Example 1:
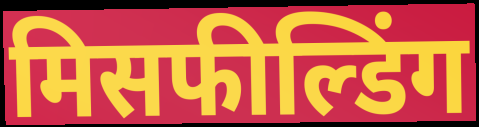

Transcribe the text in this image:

मिसफील्डिंग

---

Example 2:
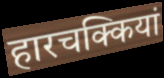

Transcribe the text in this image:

हारचक्कियां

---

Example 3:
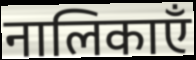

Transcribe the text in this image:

नालिकाएँ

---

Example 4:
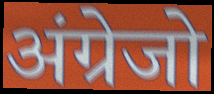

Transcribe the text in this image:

अंग्रेजो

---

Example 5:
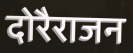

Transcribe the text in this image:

दोरैराजन